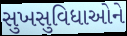
સુખસુવિધાઓને